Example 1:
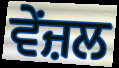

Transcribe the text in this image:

ਵੇਂਜ਼ਲ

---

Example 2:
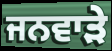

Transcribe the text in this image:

ਜਨਵਾੜੇ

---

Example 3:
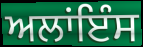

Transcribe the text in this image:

ਅਲਾਂਇੰਸ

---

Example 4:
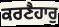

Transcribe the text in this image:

ਕਰਣੈਹਾਰੁ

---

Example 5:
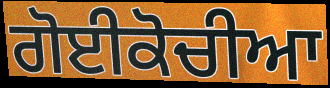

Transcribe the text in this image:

ਗੋਈਕੋਚੀਆ